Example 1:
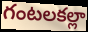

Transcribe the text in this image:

గంటలకల్లా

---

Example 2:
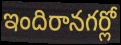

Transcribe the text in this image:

ఇందిరానగర్లో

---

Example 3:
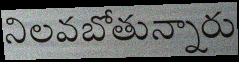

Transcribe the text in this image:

నిలవబోతున్నారు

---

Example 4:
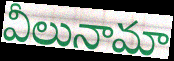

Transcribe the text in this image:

వీలునామా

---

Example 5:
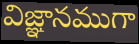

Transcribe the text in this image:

విజ్ఞానముగా